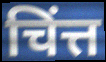
चिंत्त